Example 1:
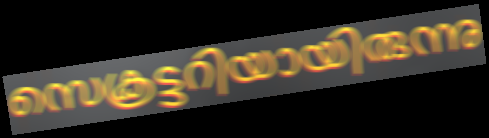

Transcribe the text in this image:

സെക്രട്ടറിയായിരുന്നു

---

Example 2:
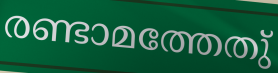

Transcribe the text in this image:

രണ്ടാമത്തേതു്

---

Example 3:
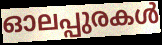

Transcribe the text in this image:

ഓലപ്പുരകൾ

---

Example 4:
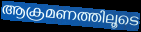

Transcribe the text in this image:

ആക്രമണത്തിലൂടെ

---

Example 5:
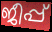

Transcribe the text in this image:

ജീപ്പ്